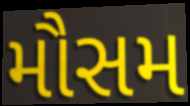
મૌસમ